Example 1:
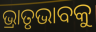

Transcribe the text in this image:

ଭ୍ରାତୃଭାବକୁ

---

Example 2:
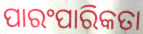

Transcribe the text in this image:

ପାରଂପାରିକତା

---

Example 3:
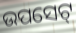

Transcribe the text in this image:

ଉପସେଟ୍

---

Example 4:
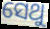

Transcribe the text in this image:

ସେଥୁ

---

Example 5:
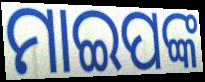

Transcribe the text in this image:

ମାଇପଙ୍କ